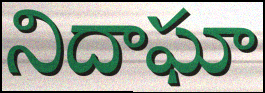
నిదాఘా